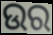
ଉର